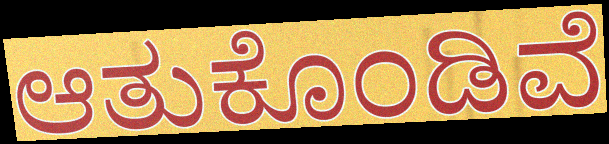
ಆತುಕೊಂಡಿವೆ